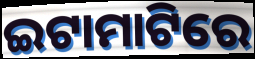
ଇଟାମାଟିରେ